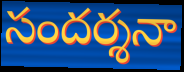
సందర్శనా